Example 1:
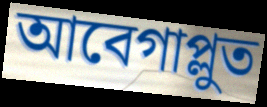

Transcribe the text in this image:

আবেগাপ্লুত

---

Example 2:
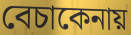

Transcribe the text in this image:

বেচাকেনায়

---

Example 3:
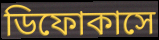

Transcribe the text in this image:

ডিফোকাসে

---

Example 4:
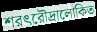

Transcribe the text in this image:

শরৎরৌদ্রালোকিত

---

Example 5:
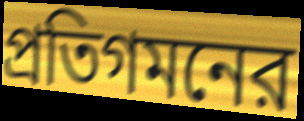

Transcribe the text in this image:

প্রতিগমনের